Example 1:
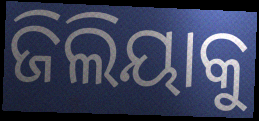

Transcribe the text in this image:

ଜିଲିୟାକୁ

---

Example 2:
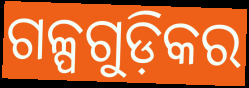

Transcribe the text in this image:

ଗଳ୍ପଗୁଡ଼ିକର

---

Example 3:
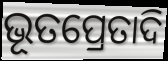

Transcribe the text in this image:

ଭୂତପ୍ରେତାଦି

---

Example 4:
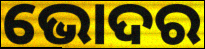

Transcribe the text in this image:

ଭୋଦର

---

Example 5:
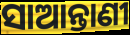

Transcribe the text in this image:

ସାଆନ୍ତାଣୀ